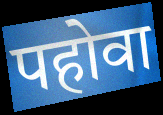
पहोवा